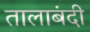
तालाबंदी